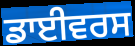
ਡਾਈਵਰਸ